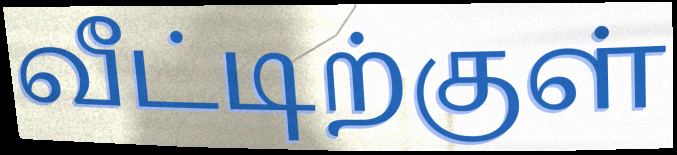
வீட்டிற்குள்